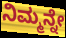
ನಿಮ್ಮನ್ನೇ